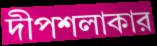
দীপশলাকার